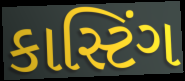
કાસ્ટિંગ